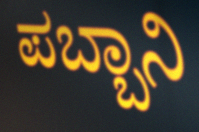
ಪಬ್ಬಾನಿ